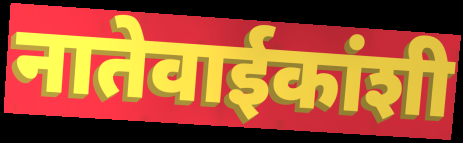
नातेवाईकांशी